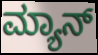
ಮ್ಯಾನ್